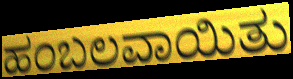
ಹಂಬಲವಾಯಿತು